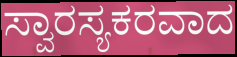
ಸ್ವಾರಸ್ಯಕರವಾದ